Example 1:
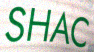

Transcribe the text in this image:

SHAC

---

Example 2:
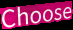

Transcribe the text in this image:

Choose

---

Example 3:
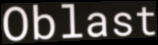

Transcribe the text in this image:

Oblast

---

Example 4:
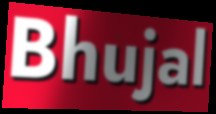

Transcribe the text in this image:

Bhujal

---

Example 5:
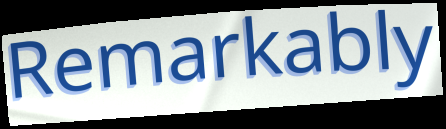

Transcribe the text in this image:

Remarkably